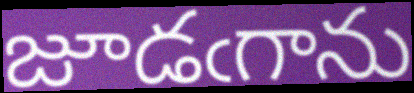
జూడఁగాను